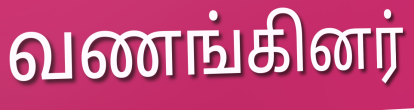
வணங்கினர்